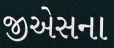
જીએસના